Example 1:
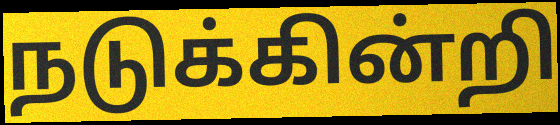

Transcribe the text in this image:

நடுக்கின்றி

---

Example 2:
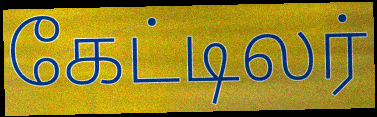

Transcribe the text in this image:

கேட்டிலர்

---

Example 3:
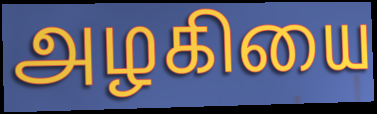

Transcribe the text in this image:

அழகியை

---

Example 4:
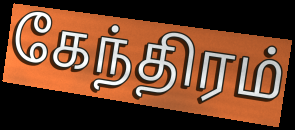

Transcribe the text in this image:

கேந்திரம்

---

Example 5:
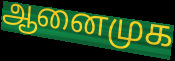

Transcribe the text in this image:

ஆனைமுக